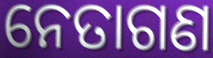
ନେତାଗଣ